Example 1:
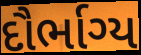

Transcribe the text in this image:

દૌર્ભાગ્ય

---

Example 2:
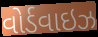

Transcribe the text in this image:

વોર્ડવાઇઝ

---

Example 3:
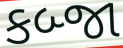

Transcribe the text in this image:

કબ્જા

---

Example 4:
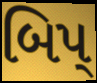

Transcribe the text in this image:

બિપ્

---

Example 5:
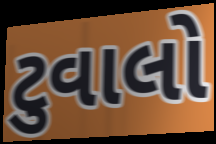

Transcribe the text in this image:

ટુવાલો